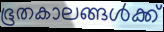
ഭൂതകാലങ്ങൾക്ക്